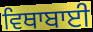
ਵਿਥਾਬਾਈ